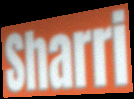
Sharri